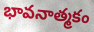
భావనాత్మకం